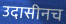
उदासीनच